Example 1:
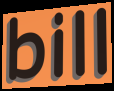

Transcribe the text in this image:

bill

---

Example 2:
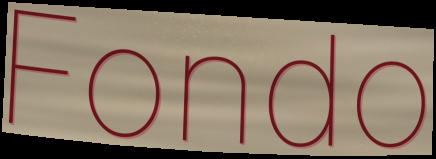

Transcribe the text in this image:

Fondo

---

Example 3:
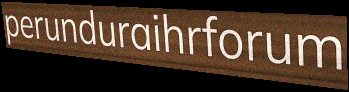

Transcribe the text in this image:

perunduraihrforum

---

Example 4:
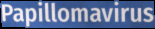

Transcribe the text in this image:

Papillomavirus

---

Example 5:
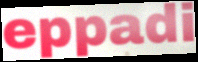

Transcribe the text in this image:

eppadi